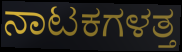
ನಾಟಕಗಳತ್ತ